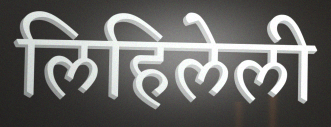
लिहिलेली